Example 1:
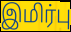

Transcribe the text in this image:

இமிர்பு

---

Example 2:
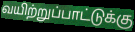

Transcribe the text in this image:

வயிற்றுப்பாட்டுக்கு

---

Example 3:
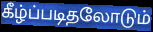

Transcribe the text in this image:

கீழ்ப்படிதலோடும்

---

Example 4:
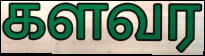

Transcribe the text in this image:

களவர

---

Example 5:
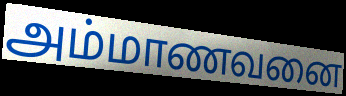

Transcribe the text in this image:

அம்மாணவனை